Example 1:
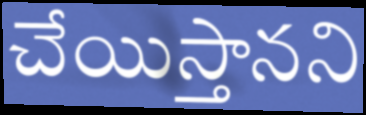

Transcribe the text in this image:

చేయిస్తానని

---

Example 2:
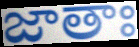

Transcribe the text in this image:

జాతాః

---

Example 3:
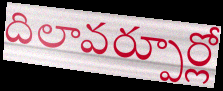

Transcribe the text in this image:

దిలావర్పూర్లో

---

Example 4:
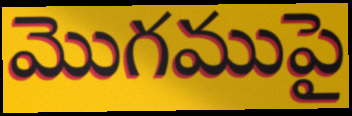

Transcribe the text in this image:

మొగముపై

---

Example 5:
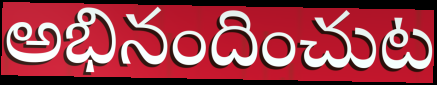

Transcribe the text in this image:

అభినందించుట